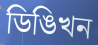
ডিঙিখন